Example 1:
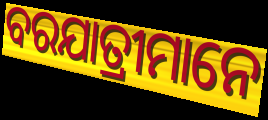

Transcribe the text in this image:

ବରଯାତ୍ରୀମାନେ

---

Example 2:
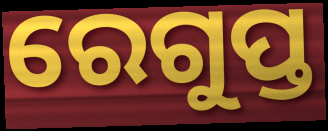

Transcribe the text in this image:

ରେଗୁପ୍ତ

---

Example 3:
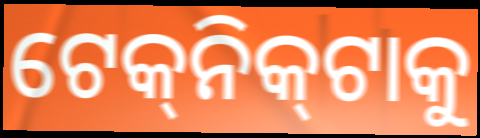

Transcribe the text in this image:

ଟେକ୍‌ନିକ୍‌ଟାକୁ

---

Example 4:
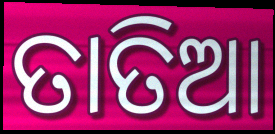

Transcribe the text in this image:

ତାତିଆ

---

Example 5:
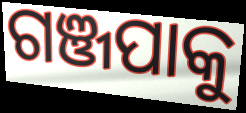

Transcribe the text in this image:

ଗଞ୍ଜପାକୁ